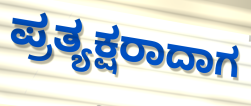
ಪ್ರತ್ಯಕ್ಷರಾದಾಗ